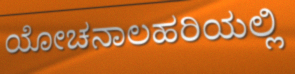
ಯೋಚನಾಲಹರಿಯಲ್ಲಿ